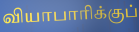
வியாபாரிக்குப்